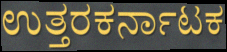
ಉತ್ತರಕರ್ನಾಟಕ